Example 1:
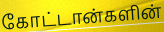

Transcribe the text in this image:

கோட்டான்களின்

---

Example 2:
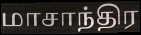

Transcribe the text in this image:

மாசாந்திர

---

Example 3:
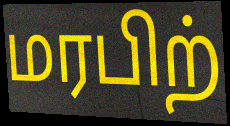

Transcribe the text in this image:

மரபிற்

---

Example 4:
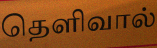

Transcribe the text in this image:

தெளிவால்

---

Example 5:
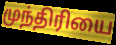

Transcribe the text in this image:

முந்திரியை